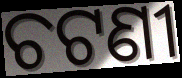
ଚଟଣୀ